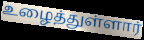
உழைத்துள்ளார்